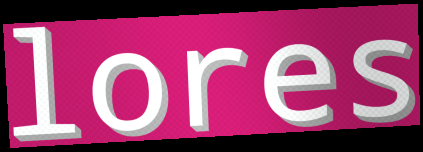
lores